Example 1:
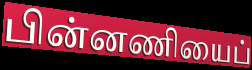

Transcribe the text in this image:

பின்னணியைப்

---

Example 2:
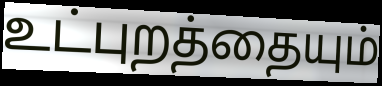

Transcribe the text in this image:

உட்புறத்தையும்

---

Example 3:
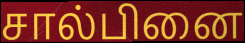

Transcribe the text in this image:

சால்பினை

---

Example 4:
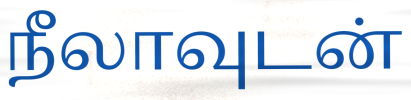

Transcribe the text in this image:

நீலாவுடன்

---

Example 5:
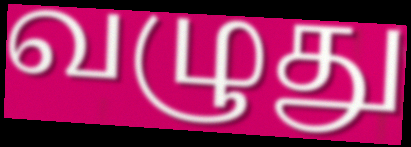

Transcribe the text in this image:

வழுது